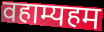
वहाम्यहम